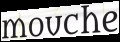
mouche